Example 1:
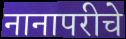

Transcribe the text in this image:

नानापरीचे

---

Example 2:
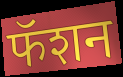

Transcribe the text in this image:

फॅशन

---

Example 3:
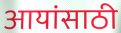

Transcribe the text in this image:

आयांसाठी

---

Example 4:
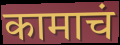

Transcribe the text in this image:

कामाचं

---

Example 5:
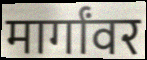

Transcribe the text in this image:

मार्गांवर